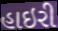
હાઇરી